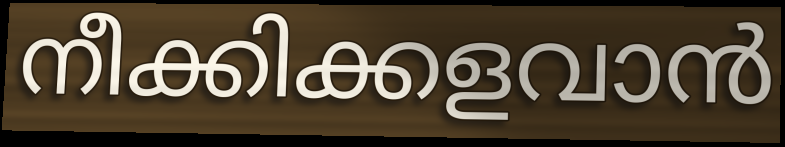
നീക്കിക്കളവാൻ